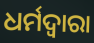
ଧର୍ମଦ୍ୱାରା